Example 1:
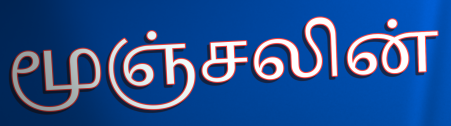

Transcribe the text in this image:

மூஞ்சலின்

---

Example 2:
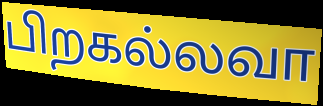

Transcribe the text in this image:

பிறகல்லவா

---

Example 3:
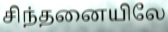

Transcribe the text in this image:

சிந்தனையிலே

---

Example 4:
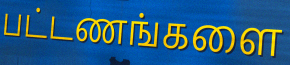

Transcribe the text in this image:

பட்டணங்களை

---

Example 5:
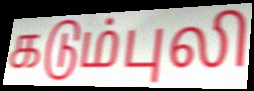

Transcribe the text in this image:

கடும்புலி